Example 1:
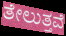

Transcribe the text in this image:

ತೇಲುತ್ತವೆ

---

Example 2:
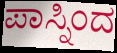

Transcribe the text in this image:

ಪಾಸ್ನಿಂದ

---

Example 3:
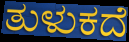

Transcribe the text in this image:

ತುಳುಕದೆ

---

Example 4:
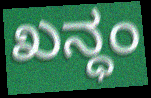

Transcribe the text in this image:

ಖನ್ಧಂ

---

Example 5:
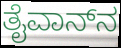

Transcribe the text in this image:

ತೈವಾನ್‌ನ